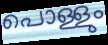
പൊള്ളും